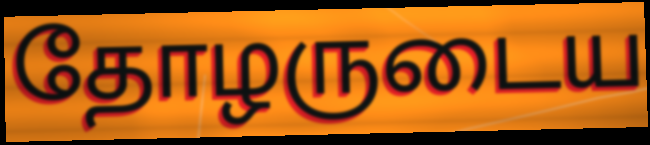
தோழருடைய